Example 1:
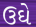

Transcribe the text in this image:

ઉઘે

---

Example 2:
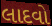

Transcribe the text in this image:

લાદવો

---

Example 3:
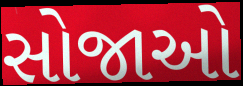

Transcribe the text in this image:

સોજાઓ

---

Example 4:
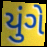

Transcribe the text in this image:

યુંગે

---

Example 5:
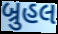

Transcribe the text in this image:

બ્રુહલ